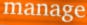
manage